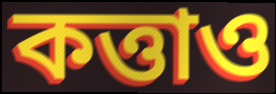
কত্তাও